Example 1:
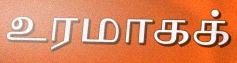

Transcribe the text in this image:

உரமாகக்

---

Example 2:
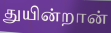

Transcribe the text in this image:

துயின்றான்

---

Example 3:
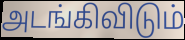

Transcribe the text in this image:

அடங்கிவிடும்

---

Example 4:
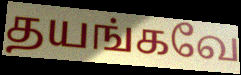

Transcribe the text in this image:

தயங்கவே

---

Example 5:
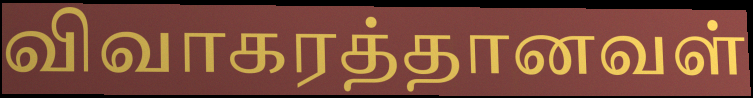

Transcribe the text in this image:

விவாகரத்தானவள்